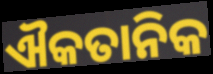
ଐକତାନିକ